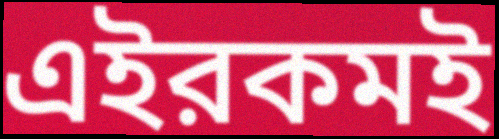
এইরকমই